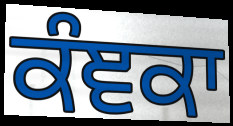
ਕੰਞਕਾ